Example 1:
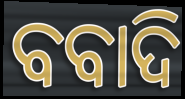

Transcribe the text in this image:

ବବାଦି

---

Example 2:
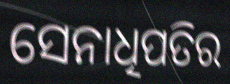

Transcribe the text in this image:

ସେନାଧିପତିର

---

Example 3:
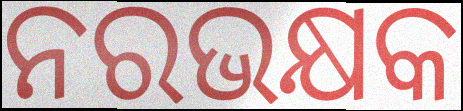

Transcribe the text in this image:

ନରଭକ୍ଷକ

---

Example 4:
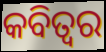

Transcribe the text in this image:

କବିତ୍ଵର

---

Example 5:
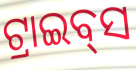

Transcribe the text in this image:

ଟ୍ରାଇବ୍‌ସ